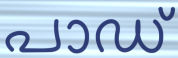
പാഡ്